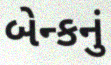
બેન્કનું